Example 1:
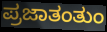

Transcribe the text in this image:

ಪ್ರಜಾತಂತುಂ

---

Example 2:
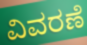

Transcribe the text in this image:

ವಿವರಣೆ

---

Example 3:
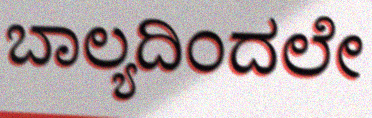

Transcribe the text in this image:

ಬಾಲ್ಯದಿಂದಲೇ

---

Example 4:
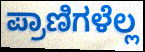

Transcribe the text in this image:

ಪ್ರಾಣಿಗಳೆಲ್ಲ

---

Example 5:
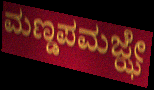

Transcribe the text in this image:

ಮಣ್ಡಪಮಜ್ಝೇ